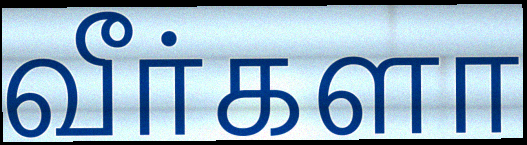
வீர்களா